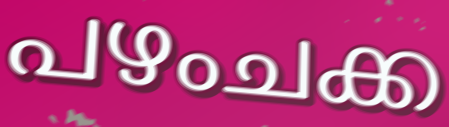
പഴംചക്ക